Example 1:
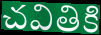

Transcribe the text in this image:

చవితికి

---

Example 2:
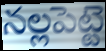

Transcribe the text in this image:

నల్లపెట్టె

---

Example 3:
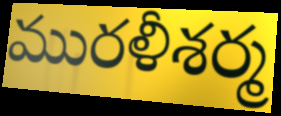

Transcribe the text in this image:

మురళీశర్మ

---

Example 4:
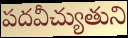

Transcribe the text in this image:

పదవీచ్యుతుని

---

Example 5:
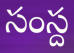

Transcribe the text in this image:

సంస్ద